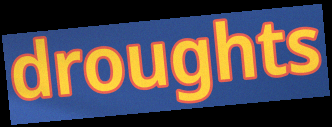
droughts